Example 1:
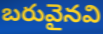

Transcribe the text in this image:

బరువైనవి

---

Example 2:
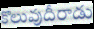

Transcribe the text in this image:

కొలువుదీరాడు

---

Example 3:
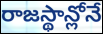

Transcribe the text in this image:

రాజస్థాన్లోనే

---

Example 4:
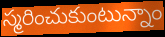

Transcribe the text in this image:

స్మరించుకుంటున్నాం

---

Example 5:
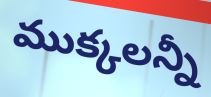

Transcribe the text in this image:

ముక్కలన్నీ